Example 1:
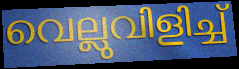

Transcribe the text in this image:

വെല്ലുവിളിച്ച്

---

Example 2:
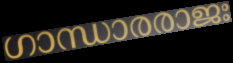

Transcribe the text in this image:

ഗാന്ധാരരാജഃ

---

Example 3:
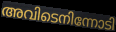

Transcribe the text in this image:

അവിടെനിന്നോടി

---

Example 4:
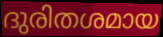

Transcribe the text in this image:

ദുരിതശമായ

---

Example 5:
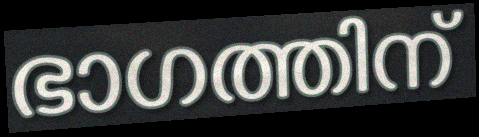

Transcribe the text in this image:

ഭാഗത്തിന്